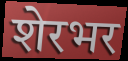
शेरभर